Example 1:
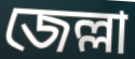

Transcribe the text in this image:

জেল্লা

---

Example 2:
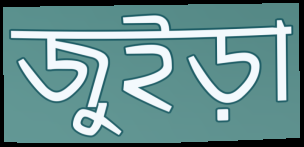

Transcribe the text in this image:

জুইড়া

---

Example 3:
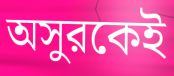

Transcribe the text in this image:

অসুরকেই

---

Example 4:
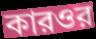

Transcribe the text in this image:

কারওর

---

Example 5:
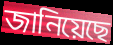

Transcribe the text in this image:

জানিয়েছে